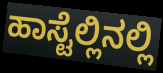
ಹಾಸ್ಟೆಲ್ಲಿನಲ್ಲಿ